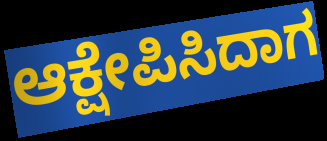
ಆಕ್ಷೇಪಿಸಿದಾಗ